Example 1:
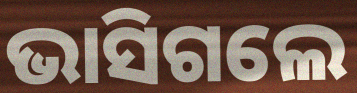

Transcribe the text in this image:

ଭାସିଗଲେ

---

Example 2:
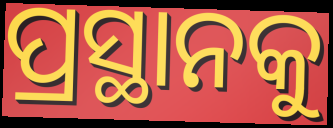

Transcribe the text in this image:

ପ୍ରସ୍ଥାନକୁ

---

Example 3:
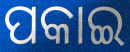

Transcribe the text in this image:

ପକାଇ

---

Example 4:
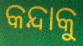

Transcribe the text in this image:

କନ୍ଦାକୁ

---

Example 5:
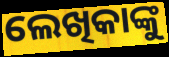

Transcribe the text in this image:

ଲେଖିକାଙ୍କୁ